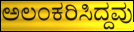
ಅಲಂಕರಿಸಿದ್ದವು